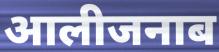
आलीजनाब